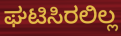
ಘಟಿಸಿರಲಿಲ್ಲ